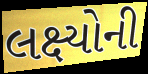
લક્ષ્યોની